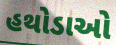
હથોડાઓ